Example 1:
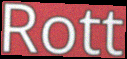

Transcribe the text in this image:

Rott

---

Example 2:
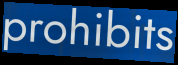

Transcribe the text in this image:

prohibits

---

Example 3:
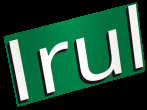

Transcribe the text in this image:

Irul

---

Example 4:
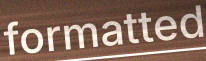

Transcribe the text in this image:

formatted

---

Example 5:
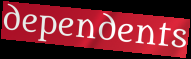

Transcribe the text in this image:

dependents